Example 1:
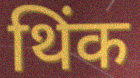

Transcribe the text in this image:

थिंक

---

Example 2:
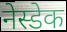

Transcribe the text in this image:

नेस्डेक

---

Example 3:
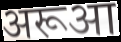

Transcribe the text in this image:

अरूआ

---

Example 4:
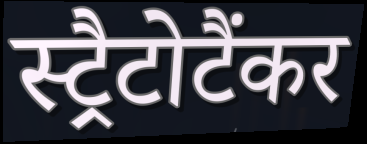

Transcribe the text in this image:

स्ट्रैटोटैंकर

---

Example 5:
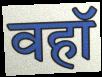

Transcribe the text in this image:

वहॉ